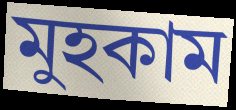
মুহকাম